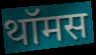
थॉमस